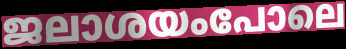
ജലാശയംപോലെ